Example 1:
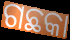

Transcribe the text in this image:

ଗଛକା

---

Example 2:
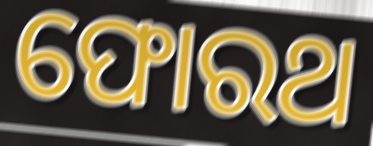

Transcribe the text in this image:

ଫୋରଥ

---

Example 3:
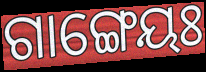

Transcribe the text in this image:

ଗାଙ୍ଗେୟଃ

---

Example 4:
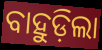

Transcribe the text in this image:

ବାହୁଡ଼ିଲା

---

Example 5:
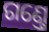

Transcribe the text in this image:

ଗଣ୍ତେ